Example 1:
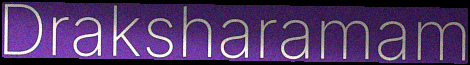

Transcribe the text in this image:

Draksharamam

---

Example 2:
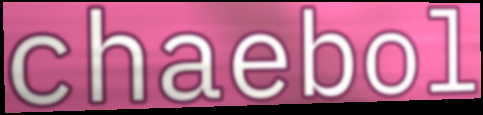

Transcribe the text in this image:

chaebol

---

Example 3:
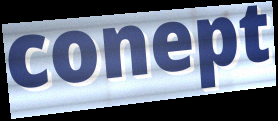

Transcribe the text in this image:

conept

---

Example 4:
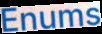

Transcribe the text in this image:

Enums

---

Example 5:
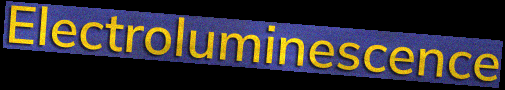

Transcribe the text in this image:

Electroluminescence